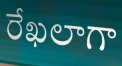
రేఖలాగా